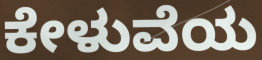
ಕೇಳುವೆಯ